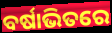
ବର୍ଷାଭିତରେ